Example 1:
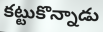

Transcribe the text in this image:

కట్టుకొన్నాడు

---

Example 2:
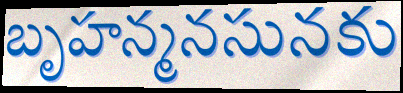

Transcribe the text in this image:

బృహన్మనసునకు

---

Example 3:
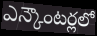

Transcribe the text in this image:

ఎన్కౌంటర్లలో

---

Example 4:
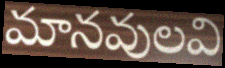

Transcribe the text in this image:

మానవులవి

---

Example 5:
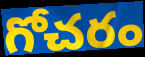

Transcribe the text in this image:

గోచరం